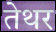
तेथर